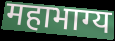
महाभाग्य